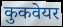
कुकवेयर